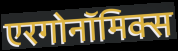
एरगोनॉमिक्स